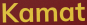
Kamat